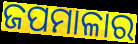
ଜପମାଳାର